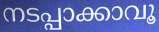
നടപ്പാക്കാവൂ